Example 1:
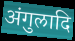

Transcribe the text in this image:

अंगुलादि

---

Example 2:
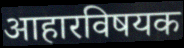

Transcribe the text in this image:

आहारविषयक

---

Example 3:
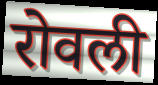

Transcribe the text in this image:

रोवली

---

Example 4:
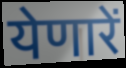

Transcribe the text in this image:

येणारें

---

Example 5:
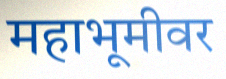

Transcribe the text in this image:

महाभूमीवर